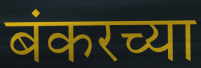
बंकरच्या